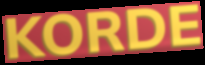
KORDE